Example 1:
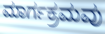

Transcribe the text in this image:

ಮಾರ್ಗಕ್ರಮವು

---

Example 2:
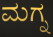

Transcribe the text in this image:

ಮಗ್ನ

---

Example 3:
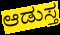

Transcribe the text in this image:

ಆಡುಸ್ತ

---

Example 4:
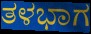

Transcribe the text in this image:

ತಳಭಾಗ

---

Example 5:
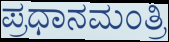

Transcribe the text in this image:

ಪ್ರಧಾನಮಂತ್ರಿ